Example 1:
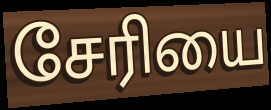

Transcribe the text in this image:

சேரியை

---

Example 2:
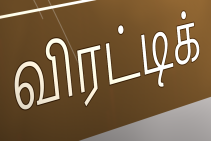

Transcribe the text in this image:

விரட்டிக்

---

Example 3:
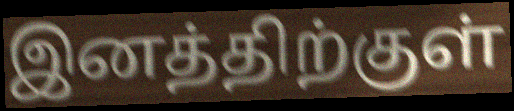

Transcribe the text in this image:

இனத்திற்குள்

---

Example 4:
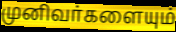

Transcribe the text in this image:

முனிவர்களையும்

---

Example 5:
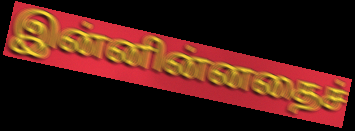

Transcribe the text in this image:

இன்னின்னதைச்